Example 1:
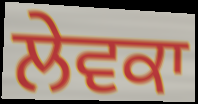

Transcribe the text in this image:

ਲੇਵਕਾ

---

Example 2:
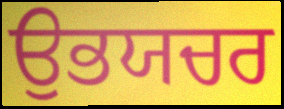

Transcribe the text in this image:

ਉਭਯਚਰ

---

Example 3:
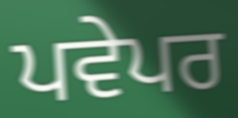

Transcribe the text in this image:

ਪਵੇਪਰ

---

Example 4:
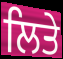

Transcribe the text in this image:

ਲਿਤੇ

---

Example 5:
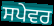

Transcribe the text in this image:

ਸਪੇਵਰ